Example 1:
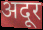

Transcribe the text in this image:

अदूर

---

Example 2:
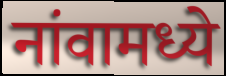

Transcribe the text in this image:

नांवामध्ये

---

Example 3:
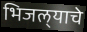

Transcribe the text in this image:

भिजल्याचे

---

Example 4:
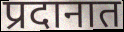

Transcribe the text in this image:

प्रदानात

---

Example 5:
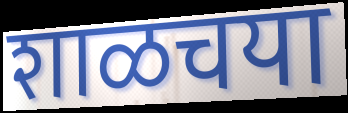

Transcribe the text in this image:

शाळचया